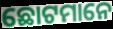
ଛୋଟମାନେ